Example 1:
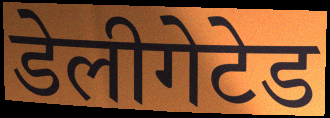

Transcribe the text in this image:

डेलीगेटेड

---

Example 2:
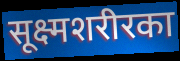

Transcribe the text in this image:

सूक्ष्मशरीरका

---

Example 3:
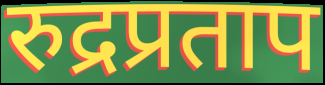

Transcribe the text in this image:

रुद्रप्रताप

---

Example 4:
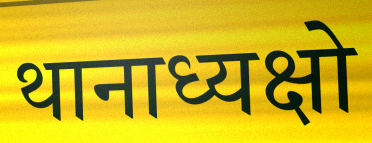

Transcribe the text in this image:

थानाध्यक्षो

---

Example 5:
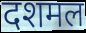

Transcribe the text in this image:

दशमल